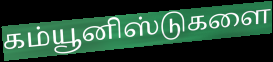
கம்யூனிஸ்டுகளை